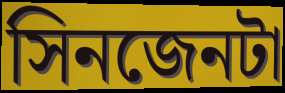
সিনজেনটা